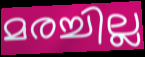
മരച്ചില്ല